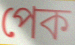
পেক